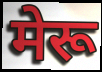
मेरू